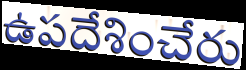
ఉపదేశించేరు